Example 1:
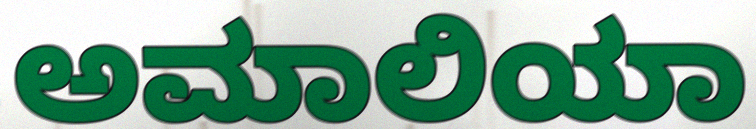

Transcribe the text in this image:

ಅಮಾಲಿಯಾ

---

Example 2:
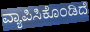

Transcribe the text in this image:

ವ್ಯಾಪಿಸಿಕೊಂಡಿದೆ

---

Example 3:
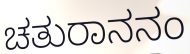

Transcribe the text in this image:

ಚತುರಾನನಂ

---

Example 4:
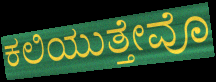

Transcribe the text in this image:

ಕಲಿಯುತ್ತೇವೊ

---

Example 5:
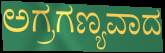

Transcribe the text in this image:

ಅಗ್ರಗಣ್ಯವಾದ